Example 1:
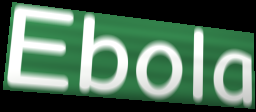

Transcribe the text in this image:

Ebola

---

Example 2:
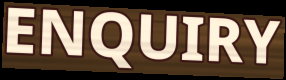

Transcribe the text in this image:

ENQUIRY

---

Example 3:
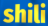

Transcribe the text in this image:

shili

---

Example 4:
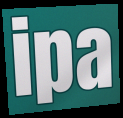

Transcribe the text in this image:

ipa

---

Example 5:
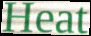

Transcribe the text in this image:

Heat